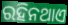
ରହିନଥାଏ